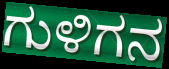
ಗುಳಿಗನ